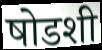
षोडशी